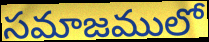
సమాజములో